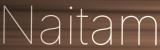
Naitam